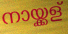
നായ്ക്കള്